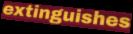
extinguishes